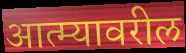
आत्म्यावरील